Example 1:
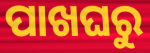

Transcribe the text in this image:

ପାଖଘରୁ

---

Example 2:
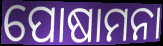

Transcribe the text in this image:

ପୋଷାମନା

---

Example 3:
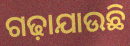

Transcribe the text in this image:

ଗଢ଼ାଯାଉଛି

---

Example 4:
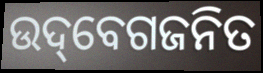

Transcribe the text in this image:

ଉଦ୍‌ବେଗଜନିତ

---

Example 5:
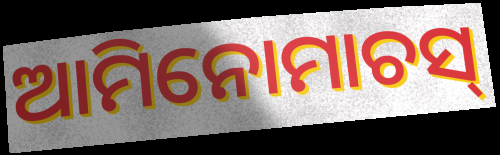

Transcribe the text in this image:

ଆମିନୋମାଚସ୍